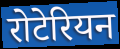
रोटेरियन